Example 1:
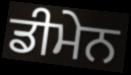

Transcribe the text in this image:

ਡੀਮੇਨ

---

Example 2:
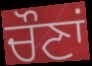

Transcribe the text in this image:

ਚੌਣਾਂ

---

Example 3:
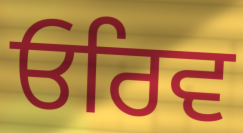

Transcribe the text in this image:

ਓਰਿਵ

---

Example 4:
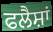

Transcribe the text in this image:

ਫਲੈਸ਼ਾਂ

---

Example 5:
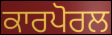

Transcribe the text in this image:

ਕਾਰਪੋਰਲ